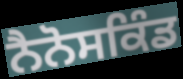
ਨੈਨੋਸਕਿੰਡ